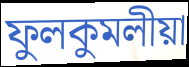
ফুলকুমলীয়া